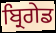
ਬ੍ਰਿਗੇਡ